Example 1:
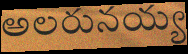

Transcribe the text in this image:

అలరునయ్య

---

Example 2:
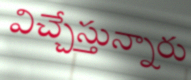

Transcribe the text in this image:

విచ్చేస్తున్నారు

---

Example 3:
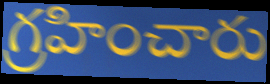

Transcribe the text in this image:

గ్రహించారు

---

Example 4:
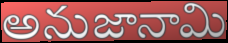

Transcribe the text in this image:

అనుజానామి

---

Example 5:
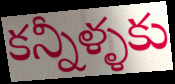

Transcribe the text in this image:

కన్నీళ్ళకు